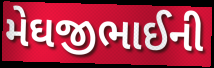
મેઘજીભાઈની